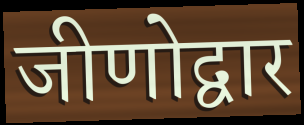
जीणोद्वार